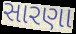
સારણા